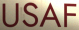
USAF